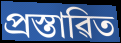
প্ৰস্তাৱিত